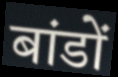
बांडों